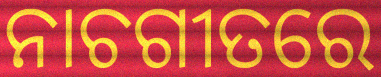
ନାଚଗୀତରେ